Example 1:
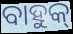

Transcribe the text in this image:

ବାହୁକ୍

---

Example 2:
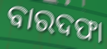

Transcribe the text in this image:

ବାରଦଫା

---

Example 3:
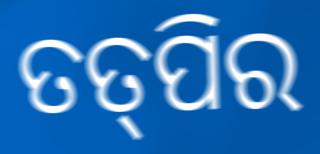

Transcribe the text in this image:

ତତ୍‌ପିର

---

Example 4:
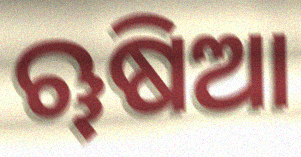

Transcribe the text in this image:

ୠଷିଆ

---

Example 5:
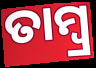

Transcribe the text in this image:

ତାମ୍ବ୍ର